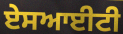
ਏਸਆਈਟੀ